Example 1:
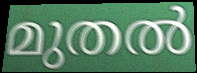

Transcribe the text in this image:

മുതൽ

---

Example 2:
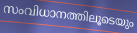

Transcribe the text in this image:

സംവിധാനത്തിലൂടെയും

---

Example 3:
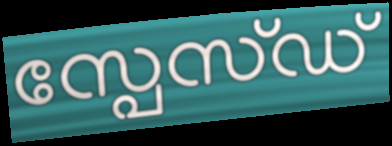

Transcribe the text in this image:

സ്പേസ്ഡ്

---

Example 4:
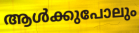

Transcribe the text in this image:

ആൾക്കുപോലും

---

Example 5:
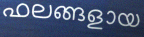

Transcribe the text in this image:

ഫലങ്ങളായ